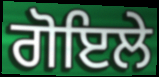
ਗੋਇਲੇ